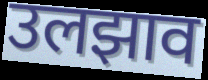
उलझाव